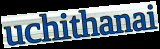
uchithanai